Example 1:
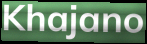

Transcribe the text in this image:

Khajano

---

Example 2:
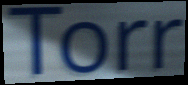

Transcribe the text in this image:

Torr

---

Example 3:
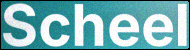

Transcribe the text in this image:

Scheel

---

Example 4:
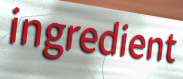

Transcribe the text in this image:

ingredient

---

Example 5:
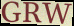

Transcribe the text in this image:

GRW